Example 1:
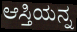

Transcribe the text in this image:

ಆಸ್ತಿಯನ್ನ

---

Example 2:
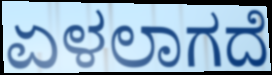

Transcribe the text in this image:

ಏಳಲಾಗದೆ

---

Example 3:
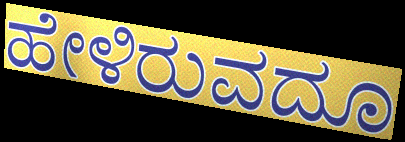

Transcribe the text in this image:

ಹೇಳಿರುವದೂ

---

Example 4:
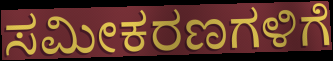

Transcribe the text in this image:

ಸಮೀಕರಣಗಳಿಗೆ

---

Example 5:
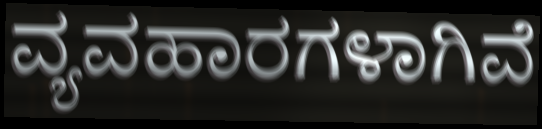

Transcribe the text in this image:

ವ್ಯವಹಾರಗಳಾಗಿವೆ